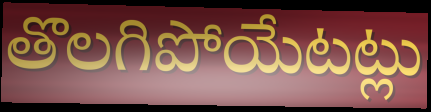
తొలగిపోయేటట్లు